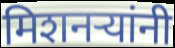
मिशनर्‍यांनी